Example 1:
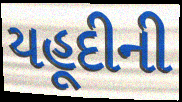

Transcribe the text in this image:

યહૂદીની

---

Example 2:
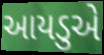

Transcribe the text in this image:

આયડુએ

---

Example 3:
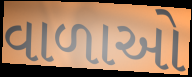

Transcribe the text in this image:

વાળાઓ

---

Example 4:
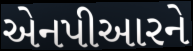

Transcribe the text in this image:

એનપીઆરને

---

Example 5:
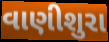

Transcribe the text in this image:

વાણીશુરા